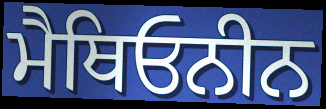
ਮੈਥਿਓਨੀਨ